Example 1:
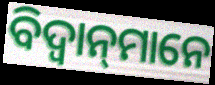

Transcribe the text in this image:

ବିଦ୍ୱାନ୍‌ମାନେ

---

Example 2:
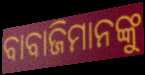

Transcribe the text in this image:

ବାବାଜିମାନଙ୍କୁ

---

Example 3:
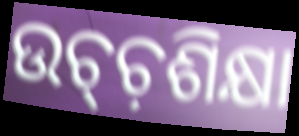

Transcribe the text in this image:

ଉଚ୍ଚ଼ଶିକ୍ଷା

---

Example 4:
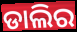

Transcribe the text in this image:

ଡାଲିର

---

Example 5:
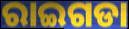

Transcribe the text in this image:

ରାଇଗଡା